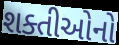
શક્તીઓનો